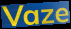
Vaze